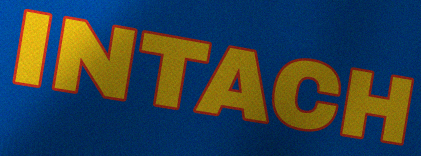
INTACH